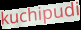
kuchipudi